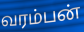
வரம்பன்